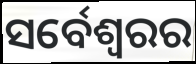
ସର୍ବେଶ୍ୱରର